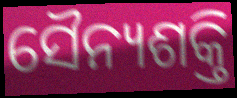
ସୈନ୍ୟଶକ୍ତି